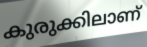
കുരുക്കിലാണ്